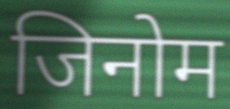
जिनोम